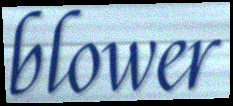
blower